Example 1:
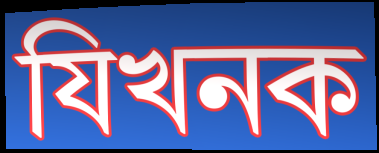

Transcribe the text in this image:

যিখনক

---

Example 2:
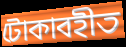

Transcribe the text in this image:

টোকাবহীত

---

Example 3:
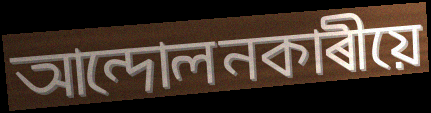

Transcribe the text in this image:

আন্দোলনকাৰীয়ে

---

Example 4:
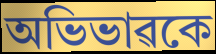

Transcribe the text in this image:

অভিভাৱকে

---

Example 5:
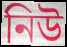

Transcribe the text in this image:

নিউ